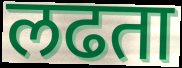
लढता